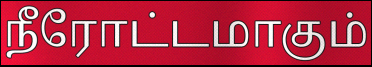
நீரோட்டமாகும்